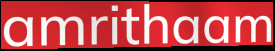
amrithaam